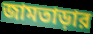
জামতাড়ার